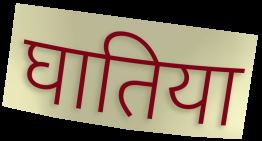
घातिया